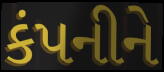
કંપનીને